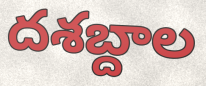
దశబ్దాల